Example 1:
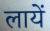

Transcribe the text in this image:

लायें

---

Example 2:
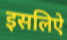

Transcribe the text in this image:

इसलिऐ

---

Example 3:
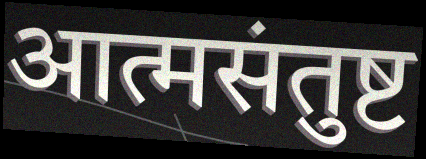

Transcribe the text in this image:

आत्मसंतुष्ट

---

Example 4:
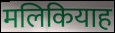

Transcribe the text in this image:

मलिकियाह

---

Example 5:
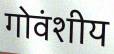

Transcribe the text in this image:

गोवंशीय